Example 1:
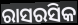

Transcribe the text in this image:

ରାସରସିକ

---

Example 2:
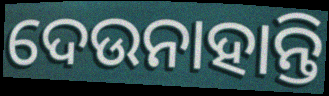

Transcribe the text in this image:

ଦେଉନାହାନ୍ତି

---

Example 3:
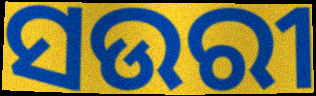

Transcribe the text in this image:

ସଉରୀ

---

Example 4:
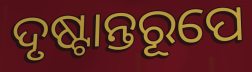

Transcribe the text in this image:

ଦୃଷ୍ଟାନ୍ତରୂପେ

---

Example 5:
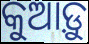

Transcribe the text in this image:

କୁଆଡ଼ୁ